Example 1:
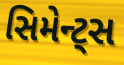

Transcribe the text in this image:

સિમેન્ટ્સ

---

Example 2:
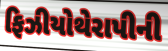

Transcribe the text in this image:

ફિઝીયોથેરાપીની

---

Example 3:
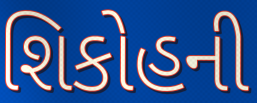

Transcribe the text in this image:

શિકોહની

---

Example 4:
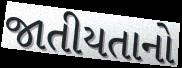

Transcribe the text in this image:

જાતીયતાનો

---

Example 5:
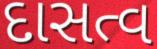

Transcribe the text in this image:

દાસત્વ